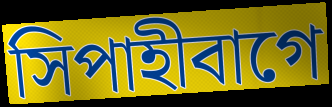
সিপাহীবাগে